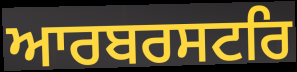
ਆਰਬਰਸਟਰਿ